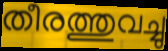
തീരത്തുവച്ചു